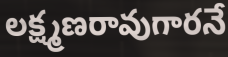
లక్ష్మణరావుగారనే